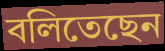
বলিতেছেন